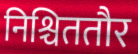
निश्चिततौर